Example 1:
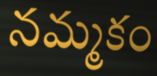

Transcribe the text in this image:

నమ్మకం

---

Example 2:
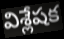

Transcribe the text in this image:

విశ్లేషక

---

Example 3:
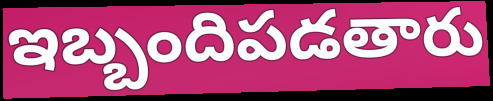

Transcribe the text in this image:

ఇబ్బందిపడతారు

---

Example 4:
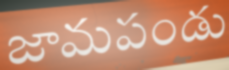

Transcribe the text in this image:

జామపండు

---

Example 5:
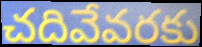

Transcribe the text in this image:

చదివేవరకు